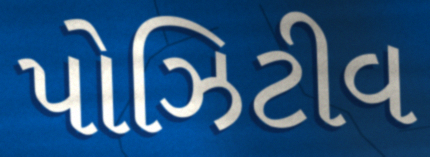
પોઝિટીવ